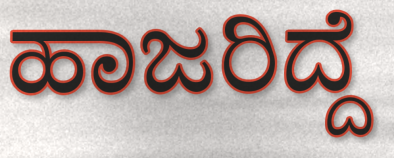
ಹಾಜರಿದ್ದೆ